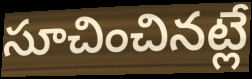
సూచించినట్లే